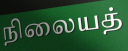
நிலையத்